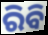
ରିବି